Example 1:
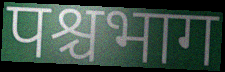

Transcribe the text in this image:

पश्चभाग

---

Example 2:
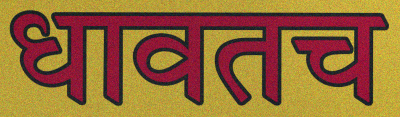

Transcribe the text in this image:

धावतच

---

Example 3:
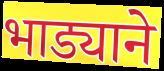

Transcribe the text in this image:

भाड्याने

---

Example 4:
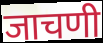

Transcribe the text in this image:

जाचणी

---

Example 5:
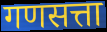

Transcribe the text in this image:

गणसत्ता